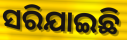
ସରିଯାଇଛି